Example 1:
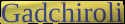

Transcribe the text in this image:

Gadchiroli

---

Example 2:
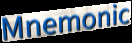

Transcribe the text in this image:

Mnemonic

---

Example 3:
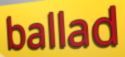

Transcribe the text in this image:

ballad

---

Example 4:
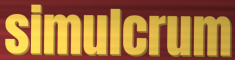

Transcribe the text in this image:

simulcrum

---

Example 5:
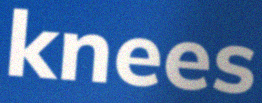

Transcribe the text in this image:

knees